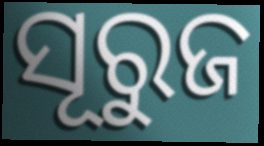
ସୂରୁଜ